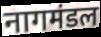
नागमंडल